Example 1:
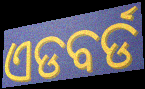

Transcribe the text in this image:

ଏଡବର୍ଡ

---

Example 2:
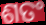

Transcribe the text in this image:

ଶତଂ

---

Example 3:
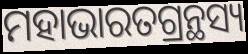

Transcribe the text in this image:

ମହାଭାରତଗ୍ରନ୍ଥସ୍ୟ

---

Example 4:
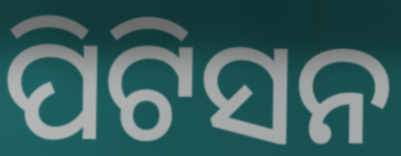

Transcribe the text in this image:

ପିଟିସନ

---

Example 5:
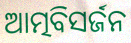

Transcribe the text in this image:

ଆତ୍ମବିସର୍ଜନ